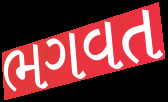
ભગવત